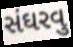
સંઘરવુ